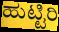
ಹುಟ್ಟಿರಿ